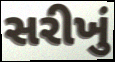
સરીખું